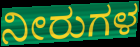
ನೀರುಗಳ